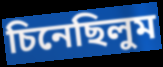
চিনেছিলুম